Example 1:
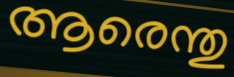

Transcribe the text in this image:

ആരെന്തു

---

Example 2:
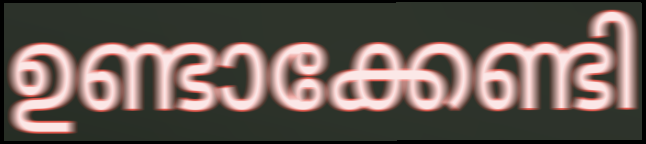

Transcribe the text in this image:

ഉണ്ടാക്കേണ്ടി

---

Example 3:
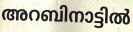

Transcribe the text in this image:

അറബിനാട്ടിൽ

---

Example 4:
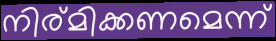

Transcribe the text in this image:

നിര്മിക്കണമെന്ന്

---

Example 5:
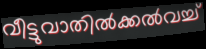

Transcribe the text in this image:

വീട്ടുവാതിൽക്കൽവച്ച്